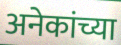
अनेकांच्या